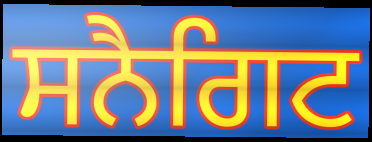
ਸਨੈਗਿਟ